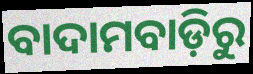
ବାଦାମବାଡ଼ିରୁ